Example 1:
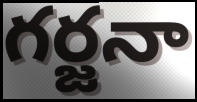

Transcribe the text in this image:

గర్జనా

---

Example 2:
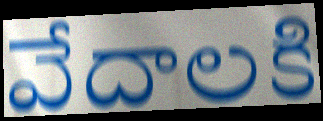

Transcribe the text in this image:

వేదాలకి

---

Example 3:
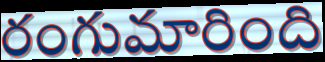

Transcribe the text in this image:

రంగుమారింది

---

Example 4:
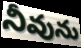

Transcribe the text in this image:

నీవును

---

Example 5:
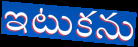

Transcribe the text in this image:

ఇటుకను